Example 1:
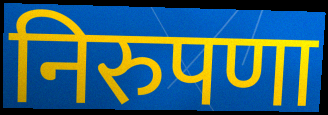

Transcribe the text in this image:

निरुपणा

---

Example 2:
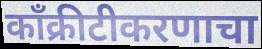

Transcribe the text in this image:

काँक्रीटीकरणाचा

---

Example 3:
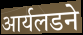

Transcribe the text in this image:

आर्यलडने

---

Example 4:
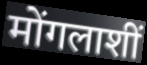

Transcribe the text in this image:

मोंगलाशीं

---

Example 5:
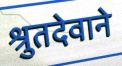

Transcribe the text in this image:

श्रुतदेवाने